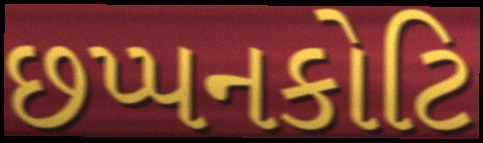
છપ્પનકોટિ